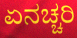
ಏನಚ್ಚರಿ